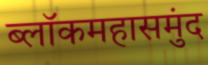
ब्लॉकमहासमुंद